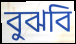
বুঝবি